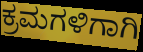
ಕ್ರಮಗಳಿಗಾಗಿ